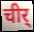
चीर्